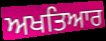
ਅਖਤਿਆਰ